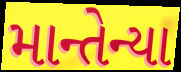
માન્તેન્યા